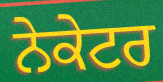
ਨੇਕੇਟਰ